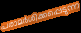
പരാമർശിക്കപ്പെടുന്ന